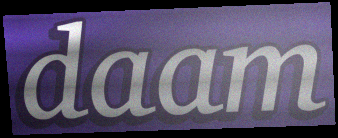
daam